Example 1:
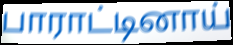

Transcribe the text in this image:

பாராட்டினாய்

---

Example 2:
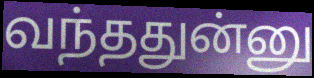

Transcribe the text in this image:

வந்ததுன்னு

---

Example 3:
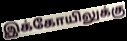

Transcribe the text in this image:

இக்கோயிலுக்கு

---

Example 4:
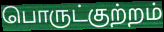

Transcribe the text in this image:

பொருட்குற்றம்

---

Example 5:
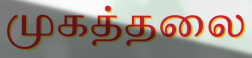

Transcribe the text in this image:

முகத்தலை